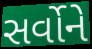
સર્વોને